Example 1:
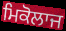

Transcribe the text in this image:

ਮਿਕੋਲਾਜ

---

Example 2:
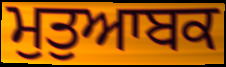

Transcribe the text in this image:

ਮੁਤੁਆਬਕ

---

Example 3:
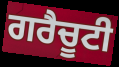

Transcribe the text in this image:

ਗਰੈਚੂਟੀ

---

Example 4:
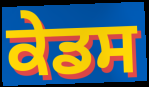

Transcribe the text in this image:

ਕੇਡਸ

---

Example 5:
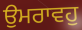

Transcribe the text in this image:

ਉਮਰਾਵਹੁ